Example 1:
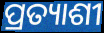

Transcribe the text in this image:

ପ୍ରତ୍ୟାଶୀ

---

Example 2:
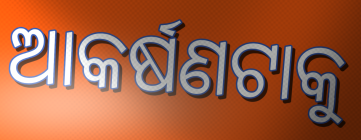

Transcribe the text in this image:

ଆକର୍ଷଣଟାକୁ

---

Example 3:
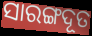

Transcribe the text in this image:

ସାରଙ୍ଗଦୂତ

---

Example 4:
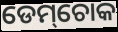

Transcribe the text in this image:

ଡେମ୍‌ଚୋକ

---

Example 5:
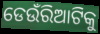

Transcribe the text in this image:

ଡେଉଁରିଆଟିକୁ